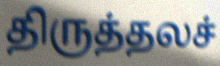
திருத்தலச்